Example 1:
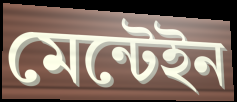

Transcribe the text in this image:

মেন্টেইন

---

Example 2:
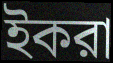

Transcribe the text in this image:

ইকরা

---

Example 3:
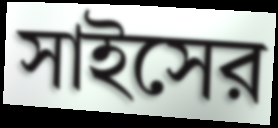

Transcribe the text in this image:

সাইসের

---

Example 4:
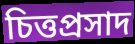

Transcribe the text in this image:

চিত্তপ্রসাদ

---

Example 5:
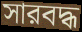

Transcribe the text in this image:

সারবদ্ধ